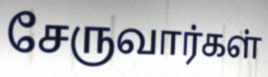
சேருவார்கள்